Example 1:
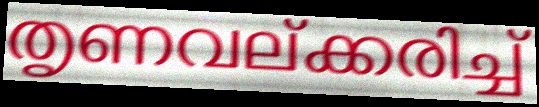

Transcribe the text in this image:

തൃണവല്ക്കരിച്ച്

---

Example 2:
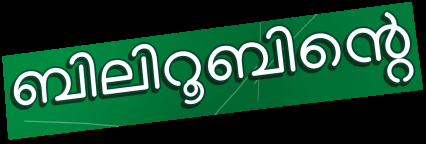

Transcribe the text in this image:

ബിലിറൂബിന്റെ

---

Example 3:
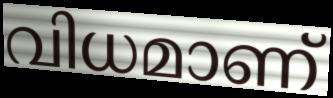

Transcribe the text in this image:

വിധമാണ്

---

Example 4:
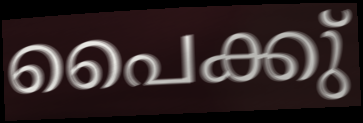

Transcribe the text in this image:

പൈക്കു്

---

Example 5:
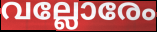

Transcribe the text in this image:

വല്ലോരേം